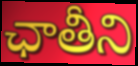
ఛాతీని